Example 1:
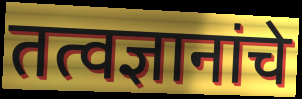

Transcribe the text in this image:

तत्वज्ञानांचे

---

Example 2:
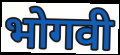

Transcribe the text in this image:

भोगवी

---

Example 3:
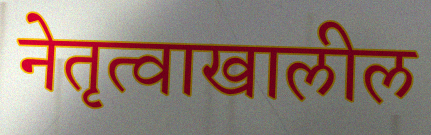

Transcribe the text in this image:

नेतृत्वाखालील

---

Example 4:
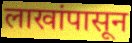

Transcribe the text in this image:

लाखांपासून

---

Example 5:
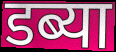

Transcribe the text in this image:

डब्या